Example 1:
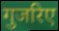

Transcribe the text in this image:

गुजरिए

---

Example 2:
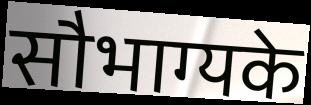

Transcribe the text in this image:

सौभाग्यके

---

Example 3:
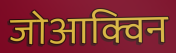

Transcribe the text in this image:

जोआक्विन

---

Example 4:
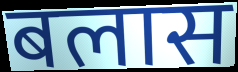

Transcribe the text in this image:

बलास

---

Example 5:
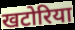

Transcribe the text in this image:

खटोरिया